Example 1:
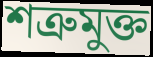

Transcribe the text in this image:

শত্রুমুক্ত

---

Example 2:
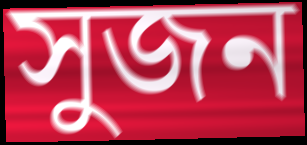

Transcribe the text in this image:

সুজন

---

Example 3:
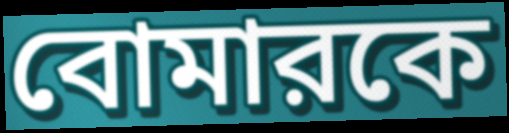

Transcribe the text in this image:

বোমারকে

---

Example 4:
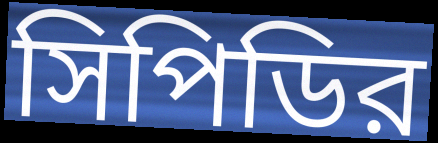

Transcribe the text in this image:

সিপিডির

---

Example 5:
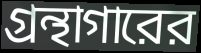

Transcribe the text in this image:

গ্রন্থাগারের